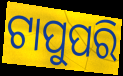
ଟାପୁପରି